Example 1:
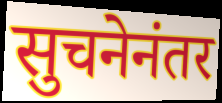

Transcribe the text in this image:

सुचनेनंतर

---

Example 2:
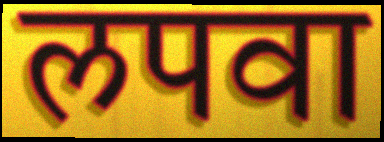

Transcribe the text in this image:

लपवा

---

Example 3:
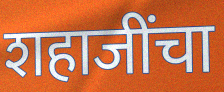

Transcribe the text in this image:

शहाजींचा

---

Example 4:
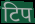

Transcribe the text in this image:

टिप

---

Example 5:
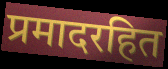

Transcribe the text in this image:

प्रमादरहित